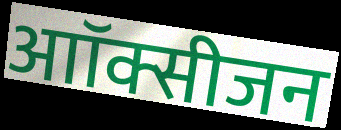
आॉक्सीजन